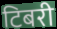
टिबरी